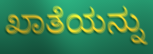
ಖಾತೆಯನ್ನು